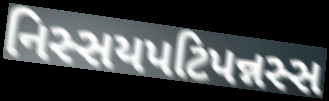
નિસ્સયપટિપન્નસ્સ